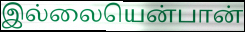
இல்லையென்பான்